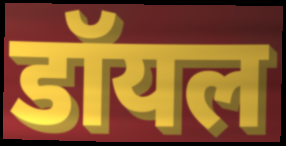
डॉयल